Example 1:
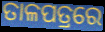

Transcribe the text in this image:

ତାଳପତ୍ରରେ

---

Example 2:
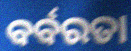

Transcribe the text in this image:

ବର୍ବରତା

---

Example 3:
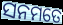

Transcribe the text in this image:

ସନମତେ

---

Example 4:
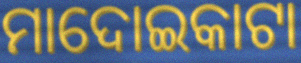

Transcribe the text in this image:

ମାଦୋଇକାଟା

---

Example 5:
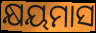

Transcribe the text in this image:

କ୍ଷୟମାସ